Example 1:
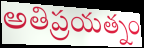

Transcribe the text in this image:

అతిప్రయత్నం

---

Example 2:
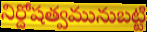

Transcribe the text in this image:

నిర్దోషత్వమునుబట్టి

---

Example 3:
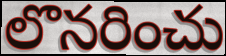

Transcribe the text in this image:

లొనరించు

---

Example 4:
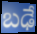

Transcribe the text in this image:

బఢే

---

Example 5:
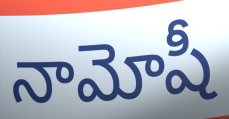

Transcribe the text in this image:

నామోషీ